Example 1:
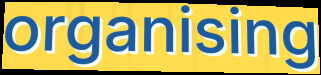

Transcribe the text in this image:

organising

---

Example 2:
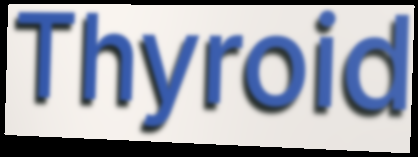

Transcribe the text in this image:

Thyroid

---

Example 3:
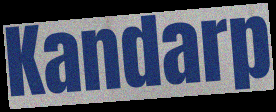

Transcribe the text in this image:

Kandarp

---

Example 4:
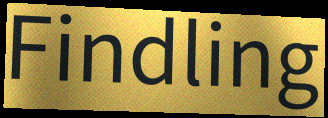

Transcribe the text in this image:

Findling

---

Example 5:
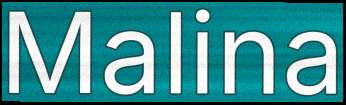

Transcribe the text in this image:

Malina